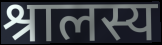
श्रालस्य